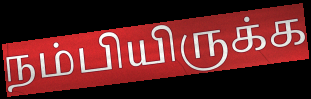
நம்பியிருக்க